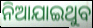
ନିଆଯାଇଥୁବ